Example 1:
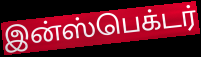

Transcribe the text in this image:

இன்ஸ்பெக்டர்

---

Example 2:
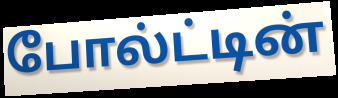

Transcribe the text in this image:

போல்ட்டின்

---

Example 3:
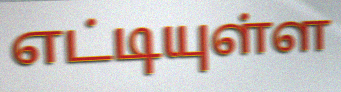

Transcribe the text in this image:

எட்டியுள்ள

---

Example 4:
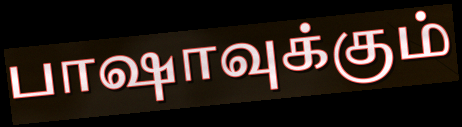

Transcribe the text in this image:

பாஷாவுக்கும்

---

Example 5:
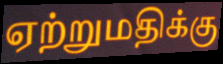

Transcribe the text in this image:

ஏற்றுமதிக்கு